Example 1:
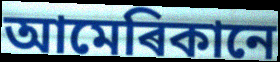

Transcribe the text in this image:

আমেৰিকানে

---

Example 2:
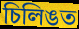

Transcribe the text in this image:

চিলিঙত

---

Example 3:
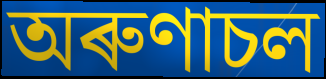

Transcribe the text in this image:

অৰুণাচল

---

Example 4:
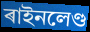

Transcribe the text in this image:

ৰাইনলেণ্ড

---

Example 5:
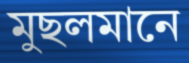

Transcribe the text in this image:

মুছলমানে